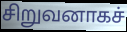
சிறுவனாகச்